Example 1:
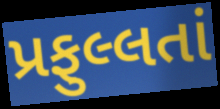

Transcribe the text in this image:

પ્રફુલ્લતાં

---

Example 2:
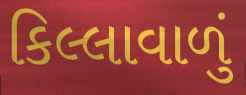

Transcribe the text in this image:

કિલ્લાવાળું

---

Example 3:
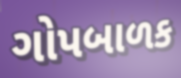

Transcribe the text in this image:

ગોપબાળક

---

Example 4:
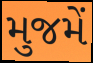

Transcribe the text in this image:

મુજમેં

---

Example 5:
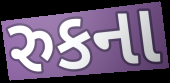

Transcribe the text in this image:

રુકના